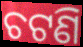
ଚଟଣି